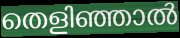
തെളിഞ്ഞാൽ